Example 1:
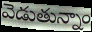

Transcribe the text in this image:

వెడుతున్నాం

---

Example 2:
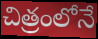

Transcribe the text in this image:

చిత్రంలోనే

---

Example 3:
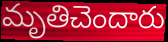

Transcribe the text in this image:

మృతిచెందారు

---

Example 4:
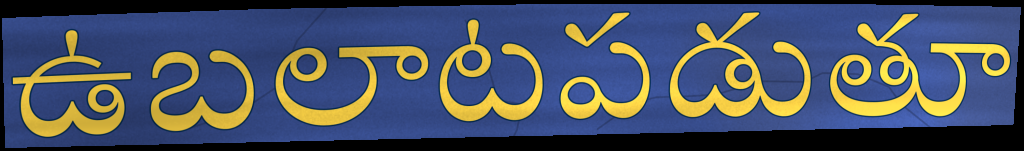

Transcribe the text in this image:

ఉబలాటపడుతూ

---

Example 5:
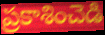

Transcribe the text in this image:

ప్రకాశించెడి